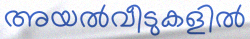
അയൽവീടുകളിൽ